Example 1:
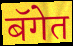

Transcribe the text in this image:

बॅगेत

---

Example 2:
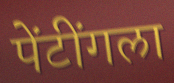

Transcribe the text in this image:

पेंटींगला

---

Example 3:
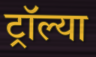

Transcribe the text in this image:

ट्रॉल्या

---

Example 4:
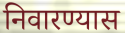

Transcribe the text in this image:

निवारण्यास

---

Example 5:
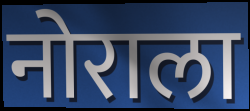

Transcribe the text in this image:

नोराला